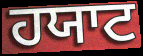
ਹਯਾਟ